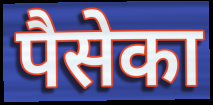
पैसेका